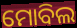
ମୋବିଲ